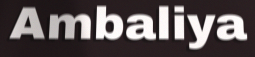
Ambaliya